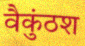
वैकुंठश